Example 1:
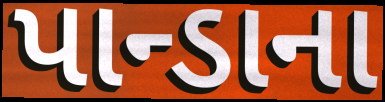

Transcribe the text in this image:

પાન્ડાના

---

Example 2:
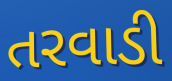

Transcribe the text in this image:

તરવાડી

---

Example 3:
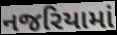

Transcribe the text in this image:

નજરિયામાં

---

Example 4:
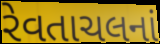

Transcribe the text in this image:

રેવતાચલનાં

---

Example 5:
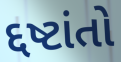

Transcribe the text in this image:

દ્દષ્ટાંતો